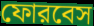
ফোরবেস